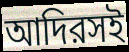
আদিরসই